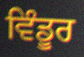
ਵਿੰਡੂਰ